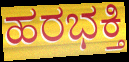
ಹರಭಕ್ತಿ